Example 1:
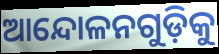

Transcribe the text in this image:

ଆନ୍ଦୋଳନଗୁଡ଼ିକୁ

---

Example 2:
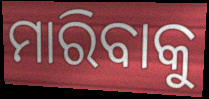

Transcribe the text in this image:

ମାରିବାକୁ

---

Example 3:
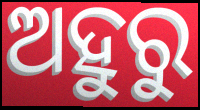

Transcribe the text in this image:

ଅହୁରୁ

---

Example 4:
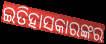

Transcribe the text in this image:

ଇତିହାସକାରଙ୍କର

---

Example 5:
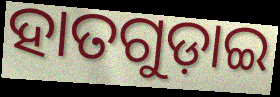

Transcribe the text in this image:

ହାତଗୁଡ଼ାଇ